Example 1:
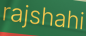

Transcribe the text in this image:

rajshahi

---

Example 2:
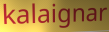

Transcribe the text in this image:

kalaignar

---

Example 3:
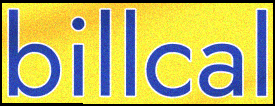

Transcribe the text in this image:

billcal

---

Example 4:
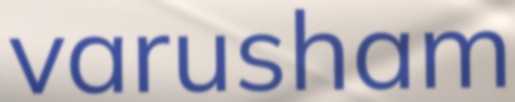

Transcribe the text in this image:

varusham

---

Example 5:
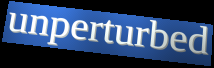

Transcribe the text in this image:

unperturbed